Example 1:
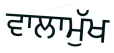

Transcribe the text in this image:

ਵਾਲਾਮੁੱਖ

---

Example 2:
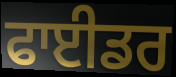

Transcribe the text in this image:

ਫਾਈਡਰ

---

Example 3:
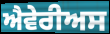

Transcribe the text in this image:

ਐਵੇਰੀਅਸ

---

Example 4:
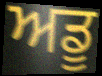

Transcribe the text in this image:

ਅਡੂ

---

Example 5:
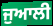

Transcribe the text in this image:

ਜੁਆਲੀ